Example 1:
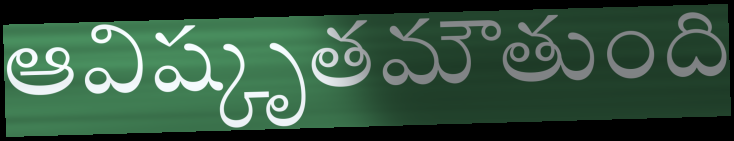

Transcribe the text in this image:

ఆవిష్కృతమౌతుంది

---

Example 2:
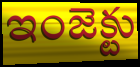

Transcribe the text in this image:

ఇంజెక్టు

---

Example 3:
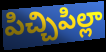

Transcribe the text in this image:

పిచ్చిపిల్లా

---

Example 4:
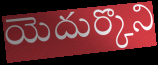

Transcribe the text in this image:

యెదుర్కొని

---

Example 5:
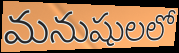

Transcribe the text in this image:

మనుషులలో